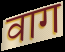
वाग